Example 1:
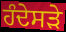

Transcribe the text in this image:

ਹੰਦੇਸੜੇ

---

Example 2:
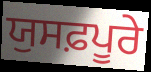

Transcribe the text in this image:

ਯੁਸਫ਼ਪੂਰੇ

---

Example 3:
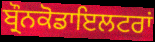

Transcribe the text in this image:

ਬ੍ਰੌਨਕੋਡਾਇਲਟਰਾਂ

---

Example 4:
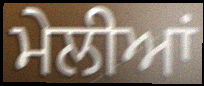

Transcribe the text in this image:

ਮੇਲੀਆਂ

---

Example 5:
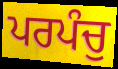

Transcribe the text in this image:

ਪਰਪੰਚੁ